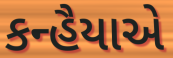
કન્હૈયાએ